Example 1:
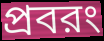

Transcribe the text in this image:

প্রবরং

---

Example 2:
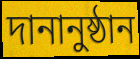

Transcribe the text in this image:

দানানুষ্ঠান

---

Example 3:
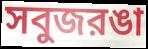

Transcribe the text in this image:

সবুজরঙা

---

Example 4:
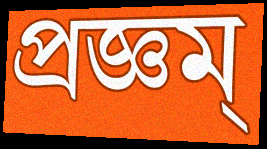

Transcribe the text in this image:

প্রজ্ঞম্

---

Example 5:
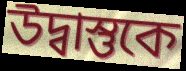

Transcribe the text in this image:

উদ্বাস্তুকে